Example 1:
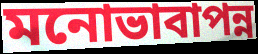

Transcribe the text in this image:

মনোভাবাপন্ন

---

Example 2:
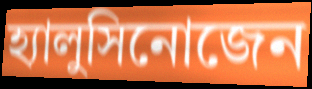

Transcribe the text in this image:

হ্যালুসিনোজেন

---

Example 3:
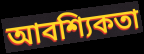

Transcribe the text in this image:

আবশ্যিকতা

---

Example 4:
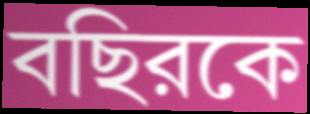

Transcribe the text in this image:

বছিরকে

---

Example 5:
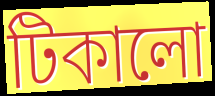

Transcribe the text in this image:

টিকালো